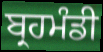
ਬ੍ਰਹਮੰਡੀ